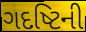
ગદષ્ટિની